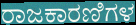
ರಾಜಕಾರಣಿಗಳ